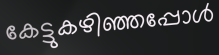
കേട്ടുകഴിഞ്ഞപ്പോൾ